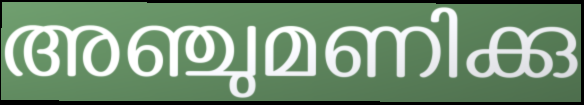
അഞ്ചുമണിക്കു